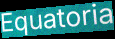
Equatoria